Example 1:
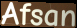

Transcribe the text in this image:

Afsan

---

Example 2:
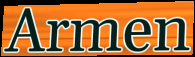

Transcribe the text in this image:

Armen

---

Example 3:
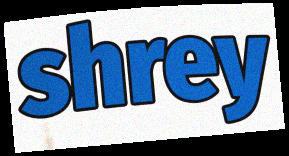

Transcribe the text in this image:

shrey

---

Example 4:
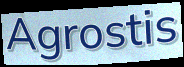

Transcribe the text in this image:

Agrostis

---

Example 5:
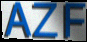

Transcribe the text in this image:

AZF